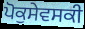
ਪੋਕੁਸੇਵਸਕੀ